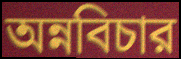
অন্নবিচার